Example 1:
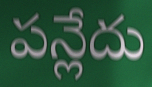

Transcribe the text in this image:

పన్లేదు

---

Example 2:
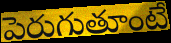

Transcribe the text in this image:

పెరుగుతూంటే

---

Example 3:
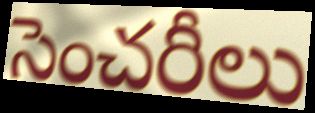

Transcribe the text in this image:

సెంచరీలు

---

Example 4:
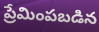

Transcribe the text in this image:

ప్రేమింపబడిన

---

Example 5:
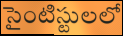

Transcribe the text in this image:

సైంటిస్టులలో